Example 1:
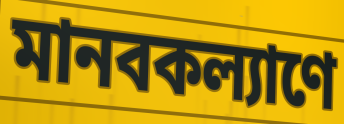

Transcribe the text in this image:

মানবকল্যাণে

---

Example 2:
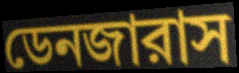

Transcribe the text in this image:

ডেনজারাস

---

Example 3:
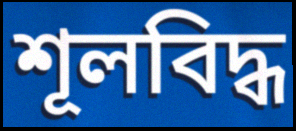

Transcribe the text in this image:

শূলবিদ্ধ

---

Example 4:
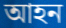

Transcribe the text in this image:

আহন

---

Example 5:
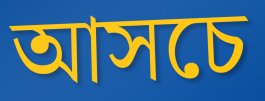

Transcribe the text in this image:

আসচে